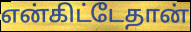
என்கிட்டேதான்